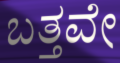
ಬತ್ತವೇ